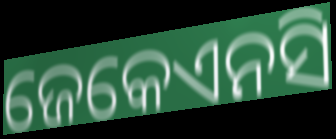
ଜେକେଏନସି